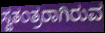
ಸ್ವತಂತ್ರರಾಗಿರುವ